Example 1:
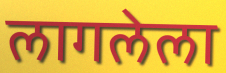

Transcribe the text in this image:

लागलेला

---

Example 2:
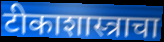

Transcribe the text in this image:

टीकाशास्त्राचा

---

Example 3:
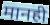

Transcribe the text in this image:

मानही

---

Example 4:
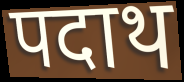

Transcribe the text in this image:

पदाथ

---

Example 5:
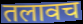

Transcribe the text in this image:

तलावच